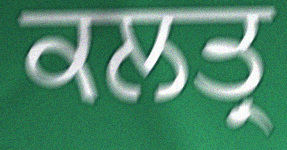
ਕਲਤ੍ਰ